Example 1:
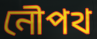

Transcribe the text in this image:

নৌপথ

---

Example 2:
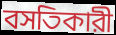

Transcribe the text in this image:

বসতিকারী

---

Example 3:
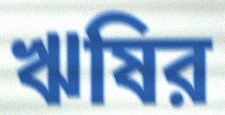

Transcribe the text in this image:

ঋষির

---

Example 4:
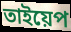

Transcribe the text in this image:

তাইয়েপ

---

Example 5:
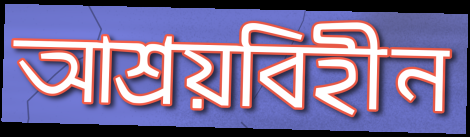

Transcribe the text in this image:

আশ্রয়বিহীন